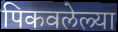
पिकवलेल्या